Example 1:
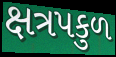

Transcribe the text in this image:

ક્ષત્રપકુળ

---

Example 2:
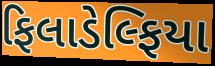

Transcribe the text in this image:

ફિલાડેલ્ફિયા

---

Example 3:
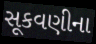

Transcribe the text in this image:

સૂકવણીના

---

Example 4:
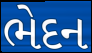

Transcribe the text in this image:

ભેદન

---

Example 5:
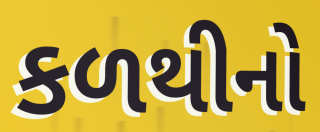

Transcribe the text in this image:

કળથીનો